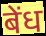
बेंध